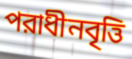
পরাধীনবৃত্তি